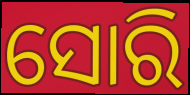
ସୋରି